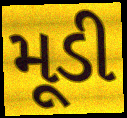
મૂડી